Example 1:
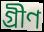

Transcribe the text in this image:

গ্ৰীণ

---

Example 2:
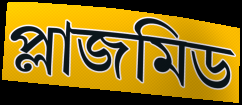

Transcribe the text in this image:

প্লাজমিড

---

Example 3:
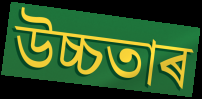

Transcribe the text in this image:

উচ্চতাৰ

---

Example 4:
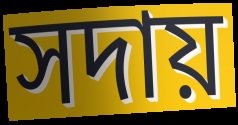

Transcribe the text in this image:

সদায়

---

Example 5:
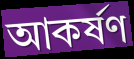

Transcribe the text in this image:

আকৰ্ষণ